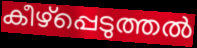
കീഴ്പ്പെടുത്തൽ